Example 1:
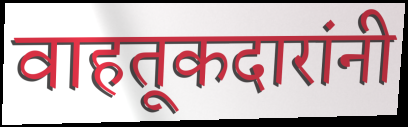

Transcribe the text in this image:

वाहतूकदारांनी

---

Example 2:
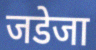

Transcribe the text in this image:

जडेजा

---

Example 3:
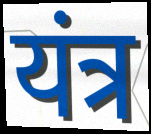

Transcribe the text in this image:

यंत्र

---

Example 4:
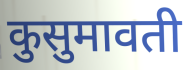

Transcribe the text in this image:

कुसुमावती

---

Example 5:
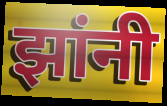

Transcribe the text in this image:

झांनी